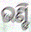
ଭଣ୍ଡି